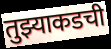
तुझ्याकडची